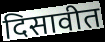
दिसावीत